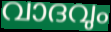
വാദവും